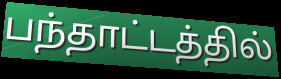
பந்தாட்டத்தில்